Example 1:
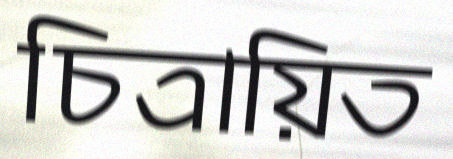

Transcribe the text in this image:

চিত্রায়িত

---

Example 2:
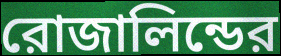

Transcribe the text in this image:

রোজালিন্ডের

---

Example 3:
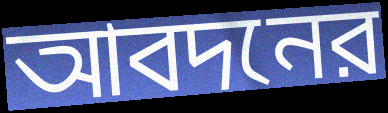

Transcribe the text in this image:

আবদনের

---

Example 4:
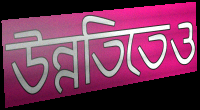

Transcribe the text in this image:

উন্নতিতেও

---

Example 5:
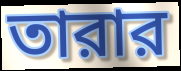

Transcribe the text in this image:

তারার